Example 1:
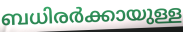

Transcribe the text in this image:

ബധിരർക്കായുള്ള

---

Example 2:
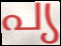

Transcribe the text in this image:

പ്യ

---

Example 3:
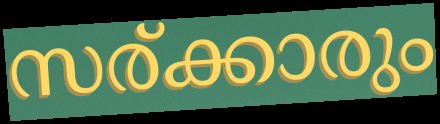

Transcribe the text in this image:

സര്ക്കാരും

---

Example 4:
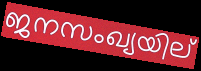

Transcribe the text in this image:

ജനസംഖ്യയില്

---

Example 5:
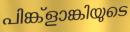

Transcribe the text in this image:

പിങ്ക്ളാങ്കിയുടെ